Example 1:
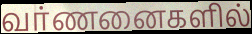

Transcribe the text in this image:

வர்ணனைகளில்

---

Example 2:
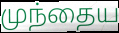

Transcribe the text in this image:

முந்தைய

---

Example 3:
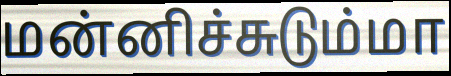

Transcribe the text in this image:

மன்னிச்சுடும்மா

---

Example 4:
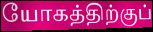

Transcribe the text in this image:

யோகத்திற்குப்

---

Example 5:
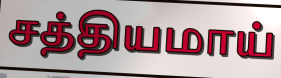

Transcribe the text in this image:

சத்தியமாய்